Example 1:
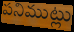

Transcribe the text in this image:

పనిముట్లు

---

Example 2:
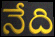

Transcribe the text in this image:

నేది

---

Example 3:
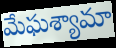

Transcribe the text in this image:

మేఘశ్యామా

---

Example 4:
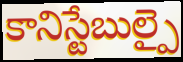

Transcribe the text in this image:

కానిస్టేబుల్పై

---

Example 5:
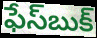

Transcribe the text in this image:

ఫేస్‌బుక్